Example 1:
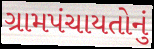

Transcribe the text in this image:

ગ્રામપંચાયતોનું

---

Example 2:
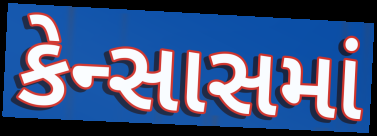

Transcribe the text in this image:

કેન્સાસમાં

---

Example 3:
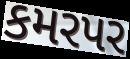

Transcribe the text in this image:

કમરપર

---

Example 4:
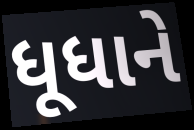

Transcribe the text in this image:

ધૂધાને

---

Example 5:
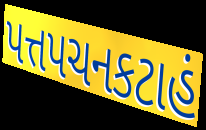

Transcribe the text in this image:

પત્તપચનકટાહં